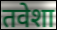
तवेशा